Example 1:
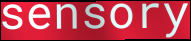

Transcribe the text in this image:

sensory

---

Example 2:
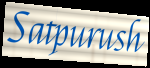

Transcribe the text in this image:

Satpurush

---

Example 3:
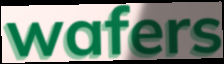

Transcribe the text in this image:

wafers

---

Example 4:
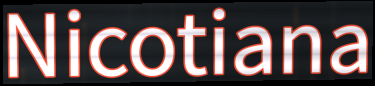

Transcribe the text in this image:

Nicotiana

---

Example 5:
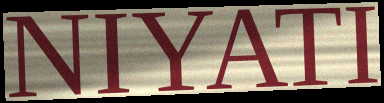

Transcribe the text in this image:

NIYATI